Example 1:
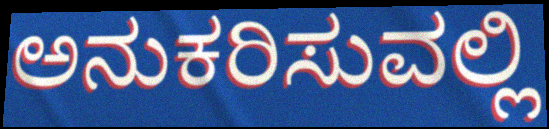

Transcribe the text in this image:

ಅನುಕರಿಸುವಲ್ಲಿ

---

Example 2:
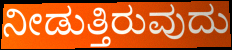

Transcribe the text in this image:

ನೀಡುತ್ತಿರುವುದು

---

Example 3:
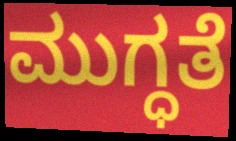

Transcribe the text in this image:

ಮುಗ್ಧತೆ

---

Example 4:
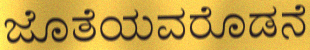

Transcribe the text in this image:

ಜೊತೆಯವರೊಡನೆ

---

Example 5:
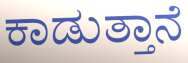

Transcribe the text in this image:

ಕಾಡುತ್ತಾನೆ